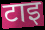
टाइ